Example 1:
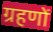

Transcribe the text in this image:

ग्रहणों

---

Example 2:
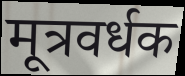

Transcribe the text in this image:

मूत्रवर्धक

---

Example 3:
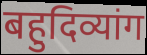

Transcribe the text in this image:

बहुदिव्यांग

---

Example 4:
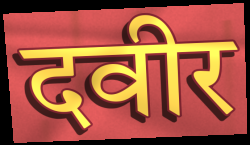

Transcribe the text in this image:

दवीर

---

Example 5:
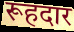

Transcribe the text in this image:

रूहदार